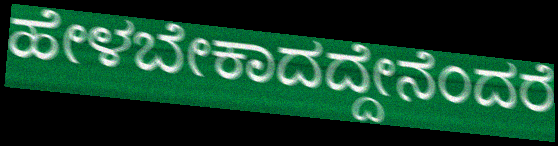
ಹೇಳಬೇಕಾದದ್ದೇನೆಂದರೆ